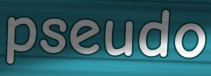
pseudo